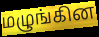
மழுங்கின